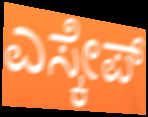
ಎಸ್ಕೇಪ್